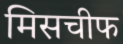
मिसचीफ